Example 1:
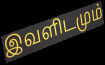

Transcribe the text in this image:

இவளிடமும்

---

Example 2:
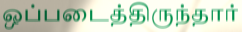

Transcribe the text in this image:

ஒப்படைத்திருந்தார்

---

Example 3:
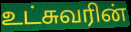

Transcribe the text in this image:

உட்சுவரின்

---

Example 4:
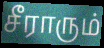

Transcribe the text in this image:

சீராரும்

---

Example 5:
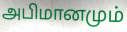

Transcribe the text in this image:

அபிமானமும்